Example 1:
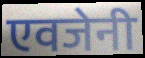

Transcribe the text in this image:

एवजेनी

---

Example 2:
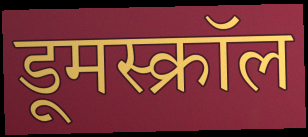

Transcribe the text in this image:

डूमस्क्रॉल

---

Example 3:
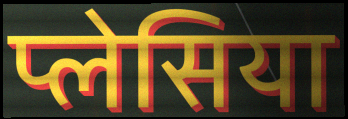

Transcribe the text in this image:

प्लेसिया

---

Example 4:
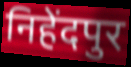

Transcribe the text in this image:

निहेंदपुर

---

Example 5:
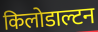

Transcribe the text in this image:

किलोडाल्टन